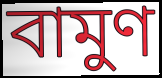
বামুণ